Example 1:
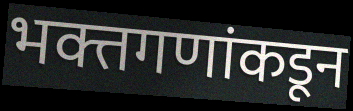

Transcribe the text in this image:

भक्तगणांकडून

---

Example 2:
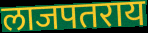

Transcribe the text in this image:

लाजपतराय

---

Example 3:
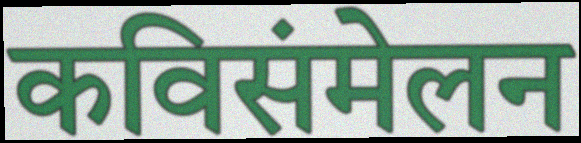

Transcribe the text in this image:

कविसंमेलन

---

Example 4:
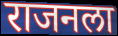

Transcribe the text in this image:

राजनला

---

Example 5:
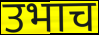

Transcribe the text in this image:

उभाच